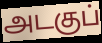
அடகுப்